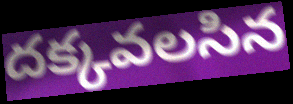
దక్కవలసిన